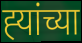
ह्‍यांच्या